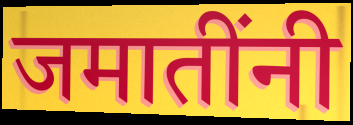
जमातींनी